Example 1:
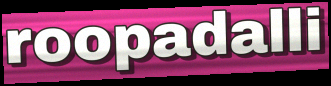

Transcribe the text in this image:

roopadalli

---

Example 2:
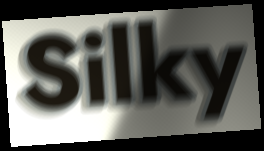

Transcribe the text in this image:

Silky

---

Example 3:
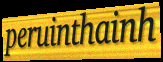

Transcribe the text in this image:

peruinthainh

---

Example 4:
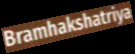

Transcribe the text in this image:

Bramhakshatriya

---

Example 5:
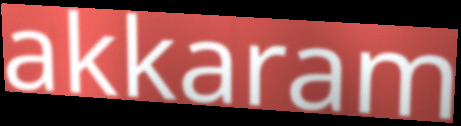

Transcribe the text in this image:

akkaram